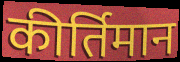
कीर्तिमान